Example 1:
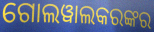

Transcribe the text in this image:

ଗୋଲୱାଲକରଙ୍କର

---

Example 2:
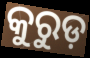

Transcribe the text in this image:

କୁରୁଡ଼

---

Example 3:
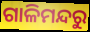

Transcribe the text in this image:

ଗାଳିମନ୍ଦରୁ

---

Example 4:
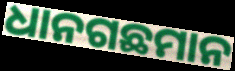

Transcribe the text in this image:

ଧାନଗଛମାନ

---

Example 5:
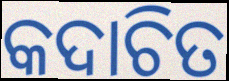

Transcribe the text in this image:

କଦାଚିତ